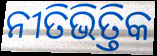
ନୀତିଭିତ୍ତିକ